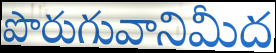
పొరుగువానిమీద